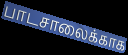
பாடசாலைக்காக